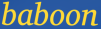
baboon